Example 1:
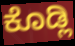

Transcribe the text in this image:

ಕೊಡ್ಲಿ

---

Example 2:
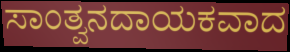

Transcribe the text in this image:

ಸಾಂತ್ವನದಾಯಕವಾದ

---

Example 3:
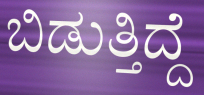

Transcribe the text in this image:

ಬಿಡುತ್ತಿದ್ದೆ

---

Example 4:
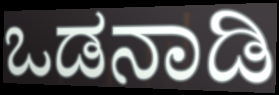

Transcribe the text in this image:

ಒಡನಾಡಿ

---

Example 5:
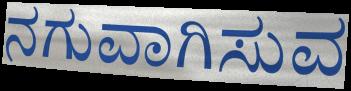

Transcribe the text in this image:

ನಗುವಾಗಿಸುವ